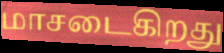
மாசடைகிறது